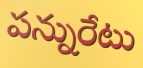
పన్నురేటు